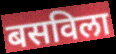
बसविला